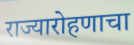
राज्यारोहणाचा